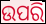
ଉପରି